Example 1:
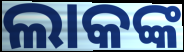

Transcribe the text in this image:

ଲାକଙ୍କ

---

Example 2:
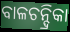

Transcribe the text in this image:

ବାଳଚନ୍ଦ୍ରିକା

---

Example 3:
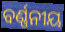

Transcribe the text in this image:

ବର୍ଣ୍ଣନୀୟ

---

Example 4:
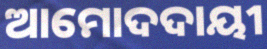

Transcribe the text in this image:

ଆମୋଦଦାୟୀ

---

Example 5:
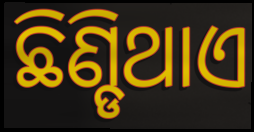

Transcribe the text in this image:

ଛିଣ୍ଡିଥାଏ